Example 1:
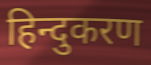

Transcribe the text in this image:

हिन्दुकरण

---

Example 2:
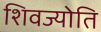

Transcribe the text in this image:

शिवज्योति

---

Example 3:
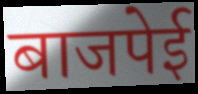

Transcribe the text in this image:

बाजपेई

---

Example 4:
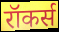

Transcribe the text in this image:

रॉकर्स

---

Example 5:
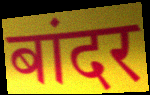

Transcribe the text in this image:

बांदर